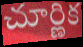
చూర్ణిక